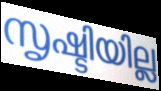
സൃഷ്ടിയില്ല